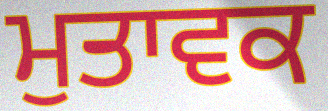
ਮੁਤਾਵਕ